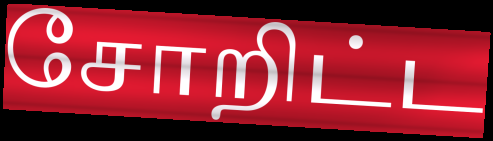
சோறிட்ட